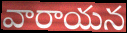
వారాయన